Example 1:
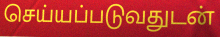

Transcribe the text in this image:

செய்யப்படுவதுடன்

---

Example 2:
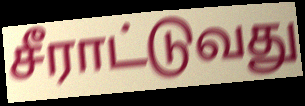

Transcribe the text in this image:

சீராட்டுவது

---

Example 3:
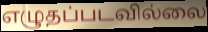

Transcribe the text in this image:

எழுதப்படவில்லை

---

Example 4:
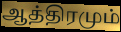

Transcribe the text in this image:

ஆத்திரமும்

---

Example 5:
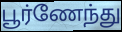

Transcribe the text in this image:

பூர்ணேந்து